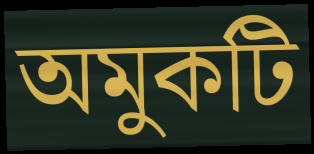
অমুকটি